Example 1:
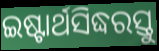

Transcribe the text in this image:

ଇଷ୍ଟାର୍ଥସିଦ୍ଧରସ୍ତୁ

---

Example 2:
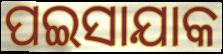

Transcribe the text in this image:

ପଇସାଯାକ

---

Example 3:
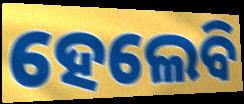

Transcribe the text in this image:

ହେଲେବି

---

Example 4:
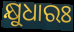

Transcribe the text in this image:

କ୍ଷୁଧାରଃ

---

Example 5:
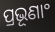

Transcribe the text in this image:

ପ୍ରଭୂଣାଂ